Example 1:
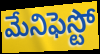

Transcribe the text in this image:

మేనిఫెస్టో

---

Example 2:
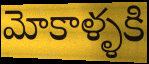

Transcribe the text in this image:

మోకాళ్ళకి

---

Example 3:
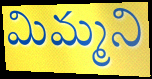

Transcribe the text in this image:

మిమ్మని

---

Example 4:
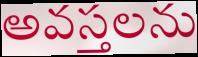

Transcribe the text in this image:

అవస్తలను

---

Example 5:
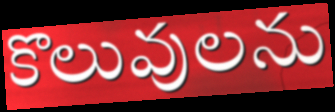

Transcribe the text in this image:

కొలువులను